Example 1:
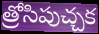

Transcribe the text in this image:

త్రోసిపుచ్చక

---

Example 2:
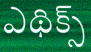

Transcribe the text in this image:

ఎథిక్స్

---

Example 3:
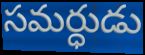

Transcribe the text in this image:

సమర్ధుడు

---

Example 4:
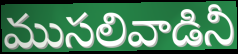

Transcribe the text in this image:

ముసలివాడినీ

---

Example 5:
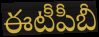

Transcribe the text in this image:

ఈటీపీబీ